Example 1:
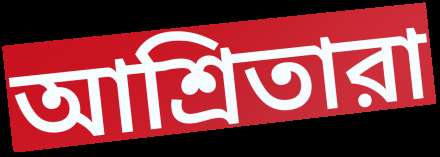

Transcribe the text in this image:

আশ্রিতারা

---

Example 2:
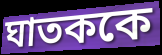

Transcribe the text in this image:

ঘাতককে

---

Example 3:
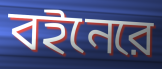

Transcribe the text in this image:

বইনেরে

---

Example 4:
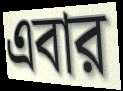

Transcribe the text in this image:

এবার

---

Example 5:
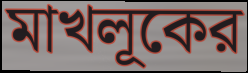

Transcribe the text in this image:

মাখলূকের